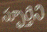
స్ఫూర్తిని